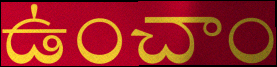
ఉంచాం